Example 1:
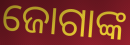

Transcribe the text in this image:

ଜୋଗାଙ୍କ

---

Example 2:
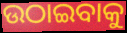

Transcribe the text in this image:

ଉଠାଇବାକୁ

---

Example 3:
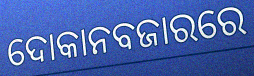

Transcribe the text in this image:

ଦୋକାନବଜାରରେ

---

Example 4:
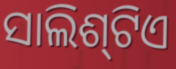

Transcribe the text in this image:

ସାଲିଶ୍‌ଟିଏ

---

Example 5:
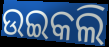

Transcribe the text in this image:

ଉଇକଲି